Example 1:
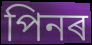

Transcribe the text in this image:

পিনৰ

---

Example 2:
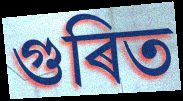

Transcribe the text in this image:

গুৰিত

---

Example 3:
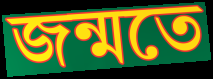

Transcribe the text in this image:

জন্মতে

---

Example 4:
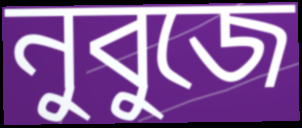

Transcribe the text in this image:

নুবুজে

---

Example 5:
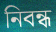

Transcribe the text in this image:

নিবন্ধ